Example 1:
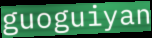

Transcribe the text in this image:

guoguiyan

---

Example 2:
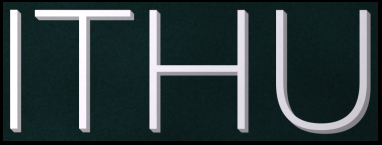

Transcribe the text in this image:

ITHU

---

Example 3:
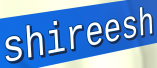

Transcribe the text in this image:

shireesh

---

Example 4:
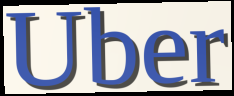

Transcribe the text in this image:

Uber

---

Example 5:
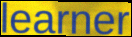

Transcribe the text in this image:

learner